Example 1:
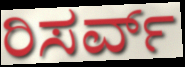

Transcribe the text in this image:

ರಿಸರ್ವ್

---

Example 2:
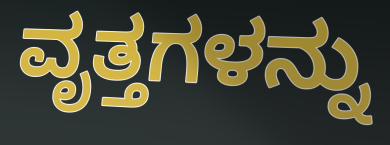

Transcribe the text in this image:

ವೃತ್ತಗಳನ್ನು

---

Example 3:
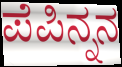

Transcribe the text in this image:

ಪೆಪಿನ್ನನ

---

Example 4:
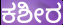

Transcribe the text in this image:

ಕಶೀರ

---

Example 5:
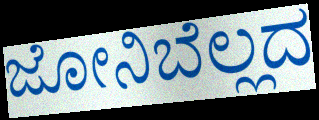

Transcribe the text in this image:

ಜೋನಿಬೆಲ್ಲದ